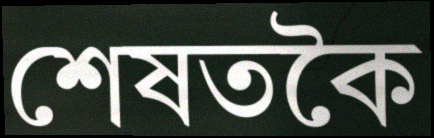
শেষতকৈ